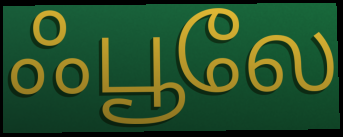
ஃபூலே